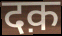
दक़